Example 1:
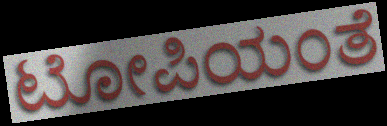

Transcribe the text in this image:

ಟೋಪಿಯಂತೆ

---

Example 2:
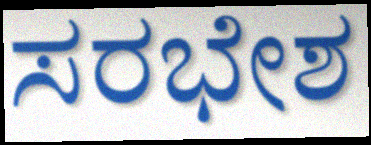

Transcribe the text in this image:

ಸರಭೇಶ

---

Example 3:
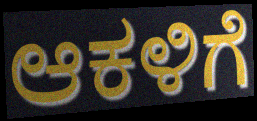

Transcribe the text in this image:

ಆಕಳಿಗೆ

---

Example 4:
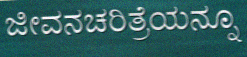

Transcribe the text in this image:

ಜೀವನಚರಿತ್ರೆಯನ್ನೂ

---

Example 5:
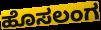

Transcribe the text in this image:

ಹೊಸಲಂಗ